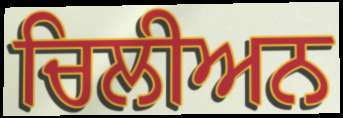
ਚਿਲੀਅਨ